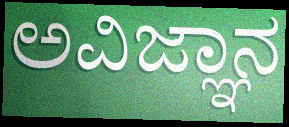
ಅವಿಜ್ಞಾನ